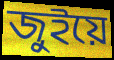
জুইয়ে